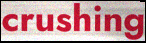
crushing